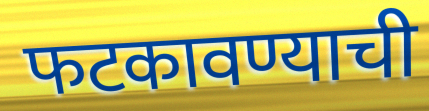
फटकावण्याची